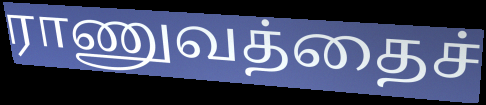
ராணுவத்தைச்